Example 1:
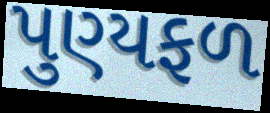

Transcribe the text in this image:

પુણ્યફળ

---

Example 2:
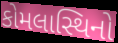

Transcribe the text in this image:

કોમલાસ્થિનો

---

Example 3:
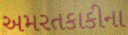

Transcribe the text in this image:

અમરતકાકીના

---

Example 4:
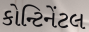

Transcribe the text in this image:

કોન્ટિનેંટલ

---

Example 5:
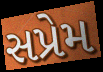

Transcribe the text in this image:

સપ્રેમ